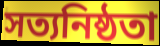
সত্যনিষ্ঠতা